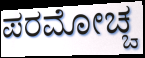
ಪರಮೋಚ್ಚ